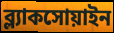
ব্ল্যাকসোয়াইন